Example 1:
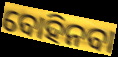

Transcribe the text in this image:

ବୋହିନବା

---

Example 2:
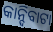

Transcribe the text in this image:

କାନ୍ଦିବାଟା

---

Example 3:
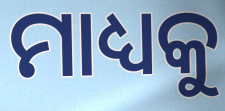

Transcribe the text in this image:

ମାଧ୍ୟକୁ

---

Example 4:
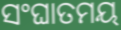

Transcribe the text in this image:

ସଂଘାତମୟ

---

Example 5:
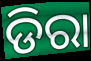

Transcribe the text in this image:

ଡିରା